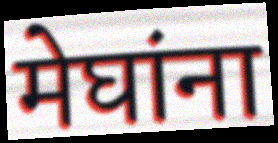
मेघांना